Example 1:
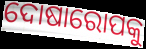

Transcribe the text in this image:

ଦୋଷାରୋପକୁ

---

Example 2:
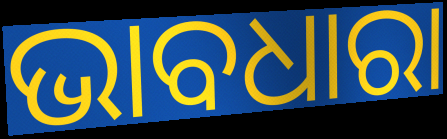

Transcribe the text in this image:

ଭାବଧାରା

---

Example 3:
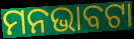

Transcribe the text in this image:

ମନଭାବଟା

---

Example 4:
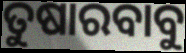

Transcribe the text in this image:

ତୁଷାରବାବୁ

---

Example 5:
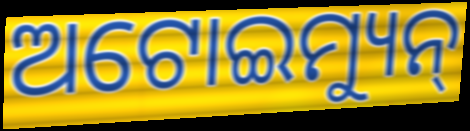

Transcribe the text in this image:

ଅଟୋଇମ୍ୟୁନ୍